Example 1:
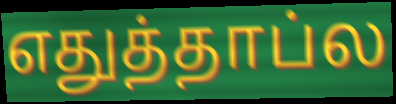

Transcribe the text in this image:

எதுத்தாப்ல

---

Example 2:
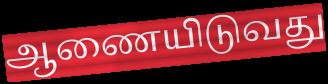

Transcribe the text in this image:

ஆணையிடுவது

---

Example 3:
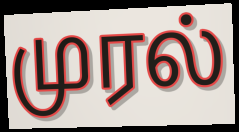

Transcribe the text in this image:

முரல்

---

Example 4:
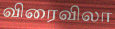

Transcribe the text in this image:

விரைவிலா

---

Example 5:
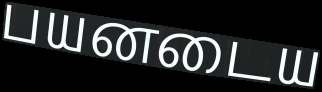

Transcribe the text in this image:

பயனடைய